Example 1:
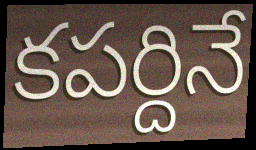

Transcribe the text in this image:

కపర్దినే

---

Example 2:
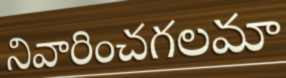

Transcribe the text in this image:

నివారించగలమా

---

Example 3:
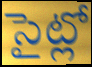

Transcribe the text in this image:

సైట్లో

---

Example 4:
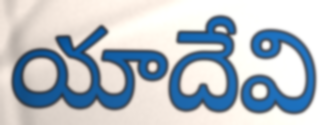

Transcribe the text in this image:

యాదేవి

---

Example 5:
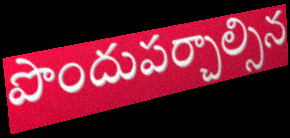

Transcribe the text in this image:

పొందుపర్చాల్సిన